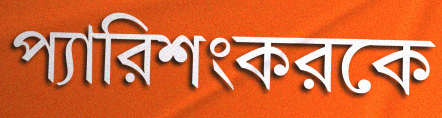
প্যারিশংকরকে